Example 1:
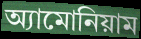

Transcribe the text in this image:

অ্যামোনিয়াম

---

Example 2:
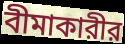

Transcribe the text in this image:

বীমাকারীর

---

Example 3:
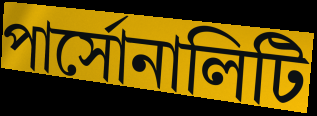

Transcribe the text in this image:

পার্সোনালিটি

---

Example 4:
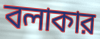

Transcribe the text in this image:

বলাকার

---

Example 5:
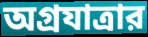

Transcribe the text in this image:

অগ্রযাত্রার